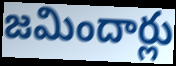
జమిందార్లు